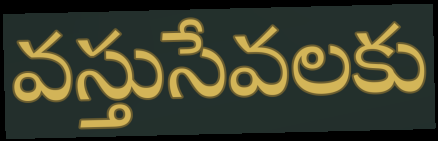
వస్తుసేవలకు